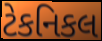
ટેકનિકલ